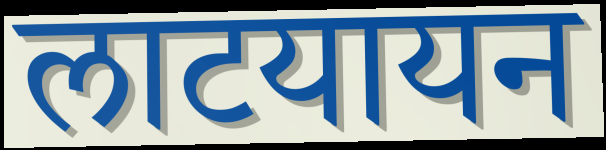
लाटयायन